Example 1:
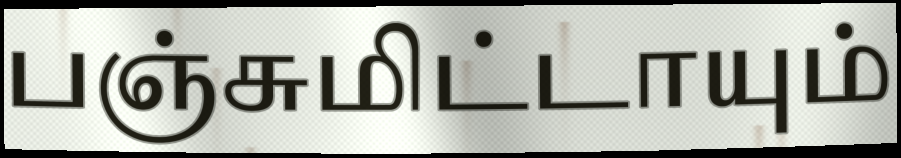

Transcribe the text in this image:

பஞ்சுமிட்டாயும்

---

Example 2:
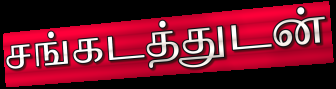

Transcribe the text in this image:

சங்கடத்துடன்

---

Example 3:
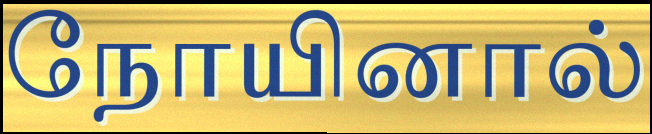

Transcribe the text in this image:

நோயினால்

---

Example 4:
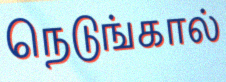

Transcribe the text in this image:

நெடுங்கால்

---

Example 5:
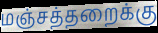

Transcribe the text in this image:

மஞ்சத்தறைக்கு